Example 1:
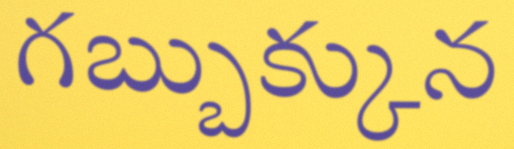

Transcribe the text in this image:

గబ్బుక్కున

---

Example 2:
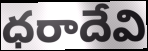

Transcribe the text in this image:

ధరాదేవి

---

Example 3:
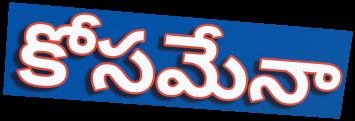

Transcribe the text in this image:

కోసమేనా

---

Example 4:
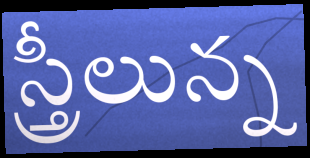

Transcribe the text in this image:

స్త్రీలున్న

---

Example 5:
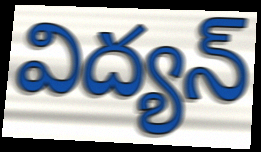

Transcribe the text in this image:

విద్యన్